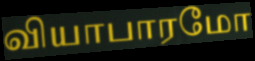
வியாபாரமோ